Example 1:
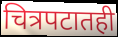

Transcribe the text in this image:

चित्रपटातही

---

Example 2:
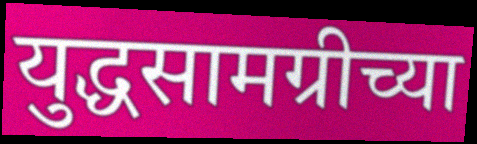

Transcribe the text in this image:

युद्धसामग्रीच्या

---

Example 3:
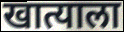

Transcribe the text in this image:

खात्याला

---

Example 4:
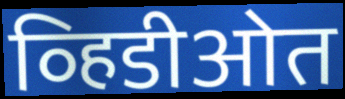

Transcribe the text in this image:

व्हिडीओत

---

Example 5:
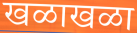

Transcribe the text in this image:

खळाखळा